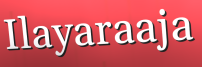
Ilayaraaja